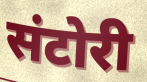
संटोरी